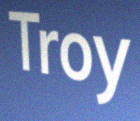
Troy